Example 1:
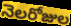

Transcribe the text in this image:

నెలరోజుల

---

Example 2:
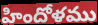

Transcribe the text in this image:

హిందోళము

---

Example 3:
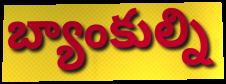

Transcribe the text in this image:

బ్యాంకుల్ని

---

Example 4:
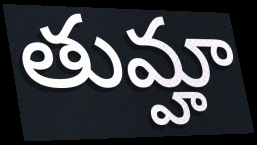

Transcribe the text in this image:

తుమ్హా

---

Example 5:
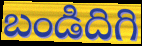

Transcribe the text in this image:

బండిదిగి